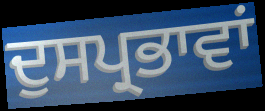
ਦੁਸਪ੍ਰਭਾਵਾਂ